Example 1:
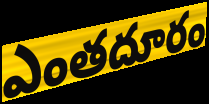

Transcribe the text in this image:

ఎంతదూరం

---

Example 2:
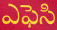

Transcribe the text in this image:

ఎఫెసి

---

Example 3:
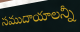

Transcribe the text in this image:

సముదాయాలన్నీ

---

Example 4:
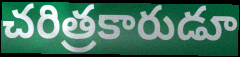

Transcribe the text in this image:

చరిత్రకారుడూ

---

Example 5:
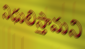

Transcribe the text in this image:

నిధులిస్తామని